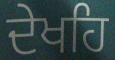
ਦੇਖਹਿ